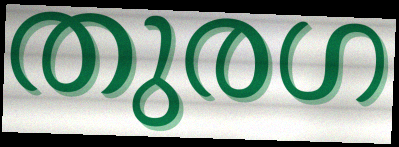
തുരഗ